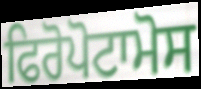
ਫਿਰੋਪੋਟਾਮੋਸ